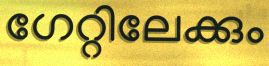
ഗേറ്റിലേക്കും